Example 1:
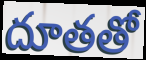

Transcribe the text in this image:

దూతతో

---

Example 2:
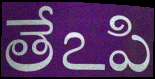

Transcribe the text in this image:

తేఽపి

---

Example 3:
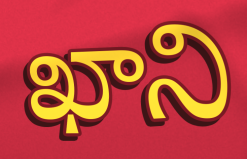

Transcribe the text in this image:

ఖాని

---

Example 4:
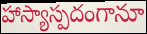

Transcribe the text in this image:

హాస్యాస్పదంగానూ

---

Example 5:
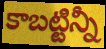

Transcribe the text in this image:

కాబట్టిన్నీ